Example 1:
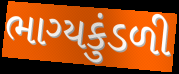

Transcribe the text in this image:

ભાગ્યકુંડળી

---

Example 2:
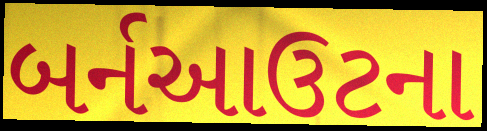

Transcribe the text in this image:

બર્નઆઉટના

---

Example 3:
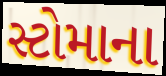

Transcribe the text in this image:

સ્ટોમાના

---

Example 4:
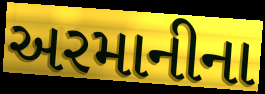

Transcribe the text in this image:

અરમાનીના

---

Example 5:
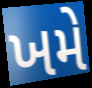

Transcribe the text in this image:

ખમે